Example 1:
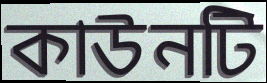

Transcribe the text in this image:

কাউনটি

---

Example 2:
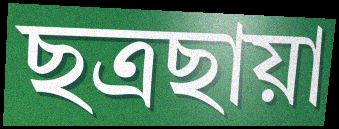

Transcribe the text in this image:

ছত্রছায়া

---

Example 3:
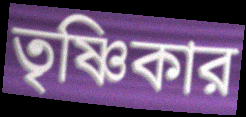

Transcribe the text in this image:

তৃষ্ণিকার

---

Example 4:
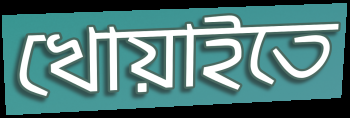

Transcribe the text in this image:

খোয়াইতে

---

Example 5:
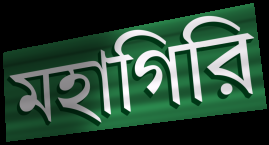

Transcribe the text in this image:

মহাগিরি